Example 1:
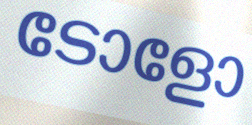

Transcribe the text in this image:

ടോളോ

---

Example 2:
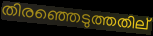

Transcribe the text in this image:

തിരഞ്ഞെടുത്തതില്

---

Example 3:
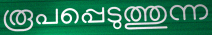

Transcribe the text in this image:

രൂപപ്പെടുത്തുന്ന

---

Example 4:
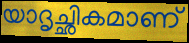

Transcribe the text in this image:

യാദൃച്ഛികമാണ്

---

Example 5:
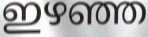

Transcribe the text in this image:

ഇഴഞ്ഞ